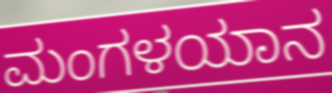
ಮಂಗಳಯಾನ